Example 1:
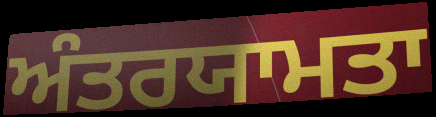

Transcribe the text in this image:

ਅੰਤਰਯਾਮਤਾ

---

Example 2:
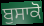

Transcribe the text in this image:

ਬੁਸਾਕੋ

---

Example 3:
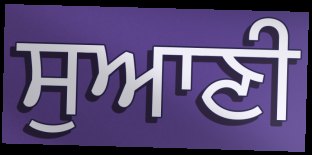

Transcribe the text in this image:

ਸੁਆਣੀ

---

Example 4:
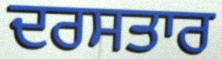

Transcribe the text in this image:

ਦਰਸਤਾਰ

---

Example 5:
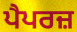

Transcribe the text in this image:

ਪੈਪਰਜ਼